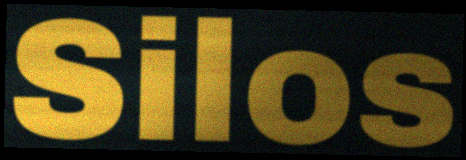
Silos